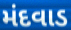
મંદવાડ